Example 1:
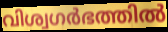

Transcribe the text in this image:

വിശ്വഗർഭത്തിൽ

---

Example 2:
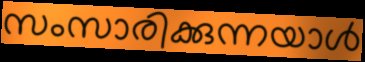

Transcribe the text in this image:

സംസാരിക്കുന്നയാൾ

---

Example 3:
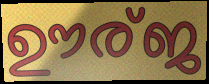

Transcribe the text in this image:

ഊര്ജ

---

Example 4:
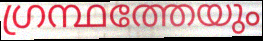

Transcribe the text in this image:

ഗ്രന്ഥത്തേയും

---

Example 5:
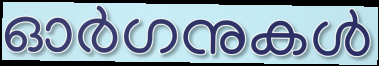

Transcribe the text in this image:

ഓർഗനുകൾ